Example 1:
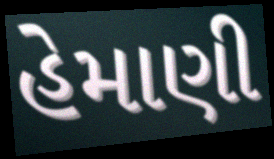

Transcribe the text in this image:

હેમાણી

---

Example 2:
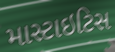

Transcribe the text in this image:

માસ્ટાઇટિસ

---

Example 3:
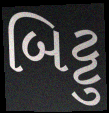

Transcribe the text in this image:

બિટ્ટુ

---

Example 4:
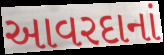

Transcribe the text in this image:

આવરદાનાં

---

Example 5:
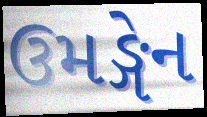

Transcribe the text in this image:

ઉમઙ્ગેન